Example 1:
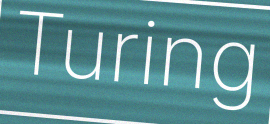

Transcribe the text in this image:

Turing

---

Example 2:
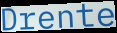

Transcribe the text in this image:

Drente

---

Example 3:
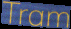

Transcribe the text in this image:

Tram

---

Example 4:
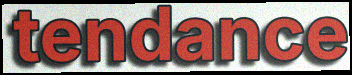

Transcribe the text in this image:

tendance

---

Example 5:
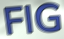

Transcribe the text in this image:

FIG